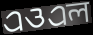
এওএল